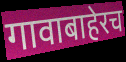
गावाबाहेरच